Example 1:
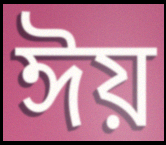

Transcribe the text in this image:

ঈয়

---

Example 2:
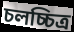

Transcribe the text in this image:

চলচ্চিত্ৰ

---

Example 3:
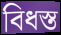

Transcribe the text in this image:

বিধস্ত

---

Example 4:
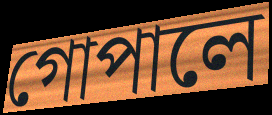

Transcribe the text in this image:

গোপালে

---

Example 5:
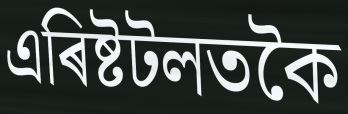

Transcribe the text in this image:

এৰিষ্টটলতকৈ